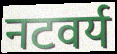
नटवर्य